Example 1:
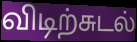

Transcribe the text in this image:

விடிற்சுடல்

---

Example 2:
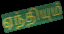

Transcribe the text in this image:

ஏந்தியும்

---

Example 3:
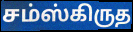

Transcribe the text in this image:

சம்ஸ்கிருத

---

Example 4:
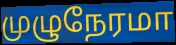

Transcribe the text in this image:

முழுநேரமா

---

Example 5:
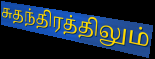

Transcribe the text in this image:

சுதந்திரத்திலும்